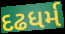
દઢધર્મ